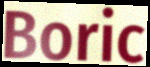
Boric